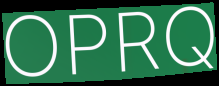
OPRQ